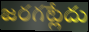
జరగట్లేదు